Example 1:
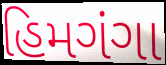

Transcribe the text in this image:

હિમગંગા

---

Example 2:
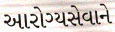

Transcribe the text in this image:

આરોગ્યસેવાને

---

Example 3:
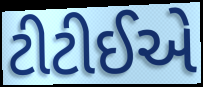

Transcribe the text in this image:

ટીટીઈએ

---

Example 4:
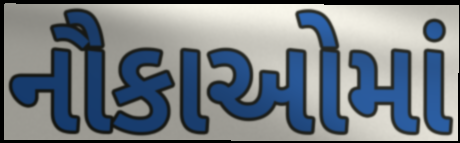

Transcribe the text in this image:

નૌકાઓમાં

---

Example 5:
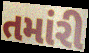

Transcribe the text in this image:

તમાંરી